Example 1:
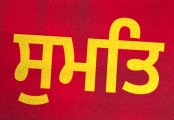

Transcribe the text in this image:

ਸੁਮਤਿ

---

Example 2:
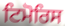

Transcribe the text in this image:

ਟਿਮੋਰਿਸ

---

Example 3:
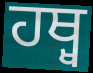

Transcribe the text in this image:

ਹਥ੍ਥ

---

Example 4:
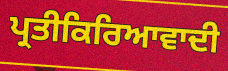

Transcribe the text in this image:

ਪ੍ਰਤੀਕਿਰਿਆਵਾਦੀ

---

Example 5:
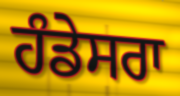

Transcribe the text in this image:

ਹੰਡੇਸਰਾ